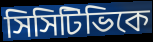
সিসিটিভিকে